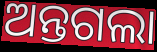
ଅନ୍ତଗଲା